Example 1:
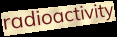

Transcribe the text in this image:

radioactivity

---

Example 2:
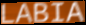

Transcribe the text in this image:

LABIA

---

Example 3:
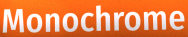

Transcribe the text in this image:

Monochrome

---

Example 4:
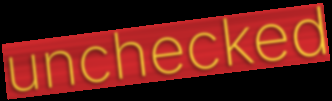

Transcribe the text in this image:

unchecked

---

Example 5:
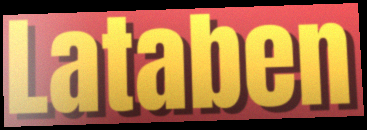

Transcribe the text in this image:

Lataben